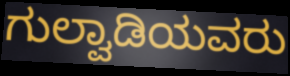
ಗುಲ್ವಾಡಿಯವರು